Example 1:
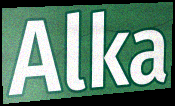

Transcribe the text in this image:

Alka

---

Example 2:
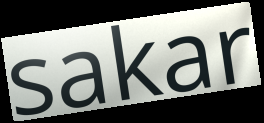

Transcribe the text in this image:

sakar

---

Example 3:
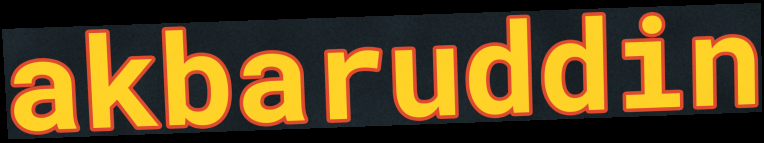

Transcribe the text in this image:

akbaruddin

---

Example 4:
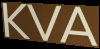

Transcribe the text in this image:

KVA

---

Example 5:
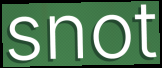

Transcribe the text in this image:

snot